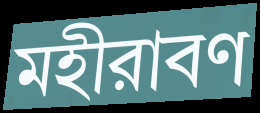
মহীরাবণ